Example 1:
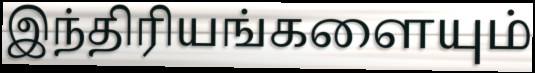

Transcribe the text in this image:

இந்திரியங்களையும்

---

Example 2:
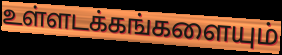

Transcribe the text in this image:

உள்ளடக்கங்களையும்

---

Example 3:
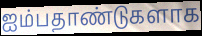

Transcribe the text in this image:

ஐம்பதாண்டுகளாக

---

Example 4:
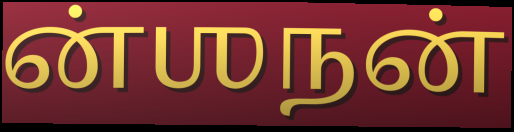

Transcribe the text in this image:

ன்ஶநன்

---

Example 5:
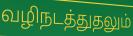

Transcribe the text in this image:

வழிநடத்துதலும்